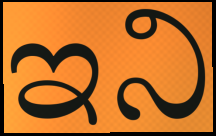
ఇని